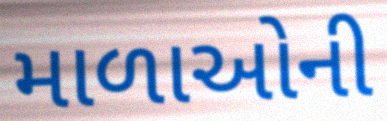
માળાઓની